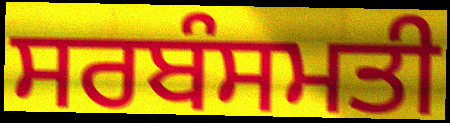
ਸਰਬੰਸਮਤੀ